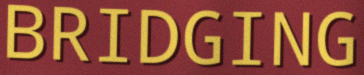
BRIDGING